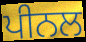
ਪੀਨਲ